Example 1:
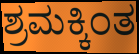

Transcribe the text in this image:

ಶ್ರಮಕ್ಕಿಂತ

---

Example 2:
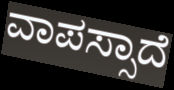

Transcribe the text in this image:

ವಾಪಸ್ಸಾದೆ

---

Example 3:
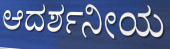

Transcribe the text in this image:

ಆದರ್ಶನೀಯ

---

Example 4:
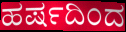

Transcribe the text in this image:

ಹರ್ಷದಿಂದ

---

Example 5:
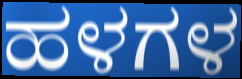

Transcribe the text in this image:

ಹಳಗಳ